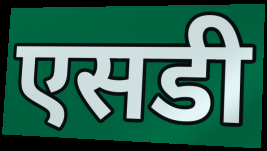
एसडी